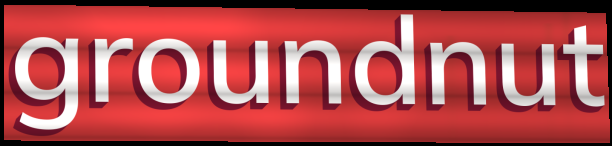
groundnut